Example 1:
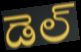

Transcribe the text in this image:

డెల్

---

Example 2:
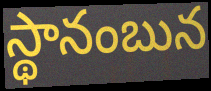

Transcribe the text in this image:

స్థానంబున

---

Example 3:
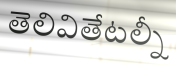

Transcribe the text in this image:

తెలివితేటల్నీ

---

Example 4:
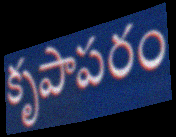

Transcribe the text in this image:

కృపాపరం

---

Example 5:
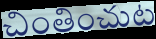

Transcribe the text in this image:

చింతించుట